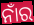
ନାଁର